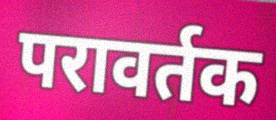
परावर्तक